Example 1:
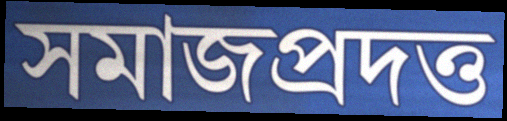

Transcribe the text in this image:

সমাজপ্রদত্ত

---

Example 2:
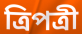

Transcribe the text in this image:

ত্রিপত্রী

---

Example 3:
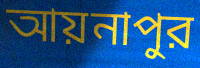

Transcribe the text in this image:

আয়নাপুর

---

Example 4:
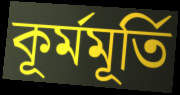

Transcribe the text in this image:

কূর্মমূর্তি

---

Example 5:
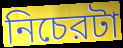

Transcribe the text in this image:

নিচেরটা